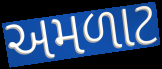
અમળાટ